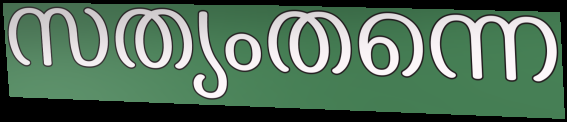
സത്യംതന്നെ